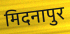
मिदनापुर